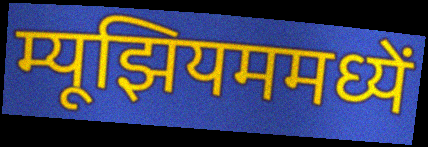
म्यूझियममध्यें